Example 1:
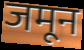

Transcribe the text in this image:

जमून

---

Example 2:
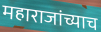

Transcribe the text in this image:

महाराजांच्याच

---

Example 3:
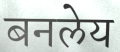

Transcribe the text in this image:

बनलेय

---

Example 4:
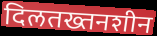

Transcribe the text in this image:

दिलतख्तनशीन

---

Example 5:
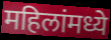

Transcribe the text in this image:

महिलांमध्ये